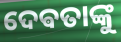
ଦେଵତାଙ୍କୁ